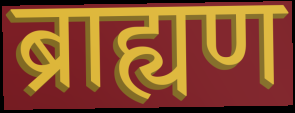
ब्राह्यण